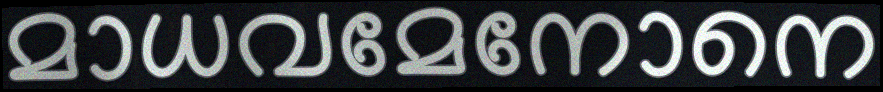
മാധവമേനോനെ